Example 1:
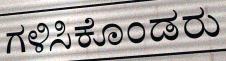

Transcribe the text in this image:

ಗಳಿಸಿಕೊಂಡರು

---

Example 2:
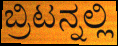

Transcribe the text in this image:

ಬ್ರಿಟನ್ನಲ್ಲಿ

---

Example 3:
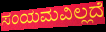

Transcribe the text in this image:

ಸಂಯಮವಿಲ್ಲದೆ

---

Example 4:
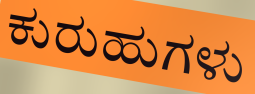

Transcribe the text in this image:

ಕುರುಹುಗಳು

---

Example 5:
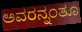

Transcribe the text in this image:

ಅವರನ್ನಂತೂ